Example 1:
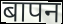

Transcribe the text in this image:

बापन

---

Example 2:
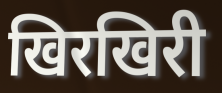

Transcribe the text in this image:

खिरखिरी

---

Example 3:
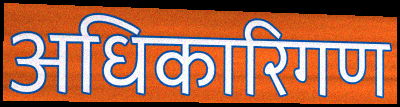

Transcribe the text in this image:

अधिकारिगण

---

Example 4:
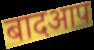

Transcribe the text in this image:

बादआप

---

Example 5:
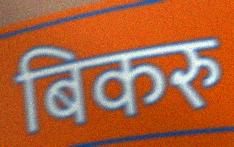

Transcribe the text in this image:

बिकरु